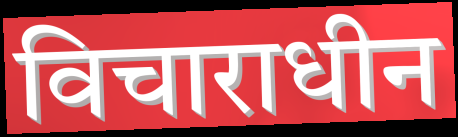
विचाराधीन